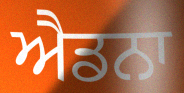
ਐਡਨਾ